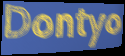
Dontyo